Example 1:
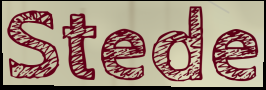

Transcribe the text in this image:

Stede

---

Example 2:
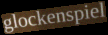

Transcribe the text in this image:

glockenspiel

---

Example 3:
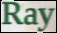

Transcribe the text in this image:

Ray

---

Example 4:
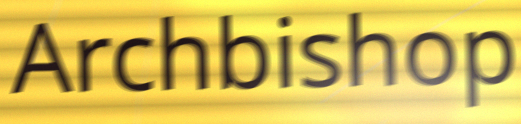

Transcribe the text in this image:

Archbishop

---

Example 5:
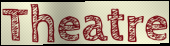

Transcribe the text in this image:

Theatre